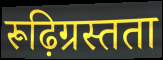
रूढ़िग्रस्तता